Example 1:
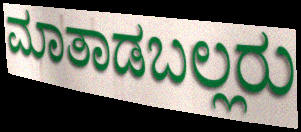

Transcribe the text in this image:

ಮಾತಾಡಬಲ್ಲರು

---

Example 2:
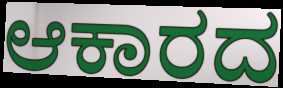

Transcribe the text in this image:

ಆಕಾರದ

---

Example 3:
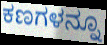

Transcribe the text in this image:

ಕಣಗಳನ್ನೂ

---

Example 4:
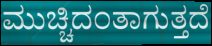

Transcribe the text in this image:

ಮುಚ್ಚಿದಂತಾಗುತ್ತದೆ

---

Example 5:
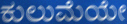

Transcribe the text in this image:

ಕುಲುಮೆಯೇ